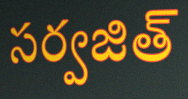
సర్వజిత్